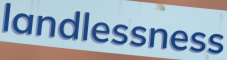
landlessness